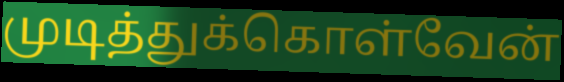
முடித்துக்கொள்வேன்